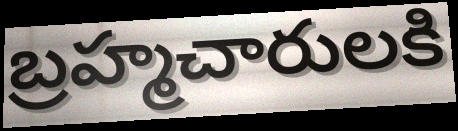
బ్రహ్మచారులకి